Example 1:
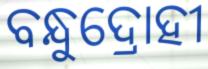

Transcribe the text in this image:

ବନ୍ଧୁଦ୍ରୋହୀ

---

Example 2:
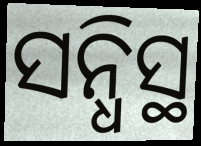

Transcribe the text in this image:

ସନ୍ଧିସ୍ଥ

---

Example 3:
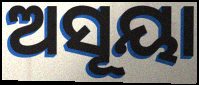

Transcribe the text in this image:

ଅସୂୟା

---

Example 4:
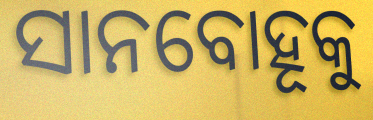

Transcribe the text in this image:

ସାନବୋହୂକୁ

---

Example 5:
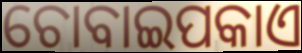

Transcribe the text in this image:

ଚୋବାଇପକାଏ